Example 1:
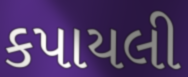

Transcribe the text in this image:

કપાયલી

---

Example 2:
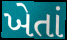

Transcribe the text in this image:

ખેતાં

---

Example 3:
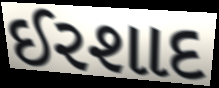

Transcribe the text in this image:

ઈરશાદ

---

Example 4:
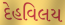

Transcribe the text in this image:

દેહવિલય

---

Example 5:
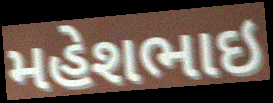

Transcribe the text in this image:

મહેશભાઇ